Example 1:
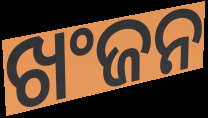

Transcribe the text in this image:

ଖଂଜନ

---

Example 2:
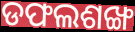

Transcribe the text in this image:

ଡଫଲଶଙ୍ଖ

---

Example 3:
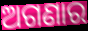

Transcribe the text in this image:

ଅଗଣାର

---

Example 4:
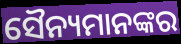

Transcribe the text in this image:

ସୈନ୍ୟମାନଙ୍କର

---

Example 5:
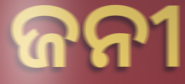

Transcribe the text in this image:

ଜନୀ